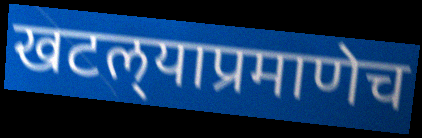
खटल्याप्रमाणेच